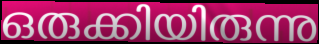
ഒരുക്കിയിരുന്നു